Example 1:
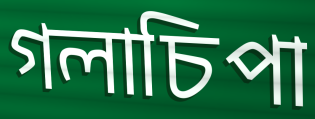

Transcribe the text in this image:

গলাচিপা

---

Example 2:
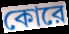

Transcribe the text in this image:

কোরে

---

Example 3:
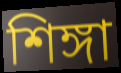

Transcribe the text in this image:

শিঙ্গা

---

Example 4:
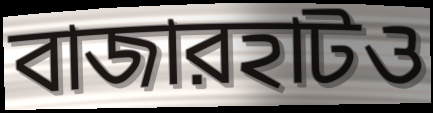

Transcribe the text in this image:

বাজারহাটও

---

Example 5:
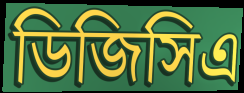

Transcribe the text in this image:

ডিজিসিএ